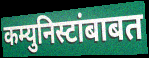
कम्युनिस्टांबाबत